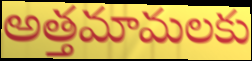
అత్తమామలకు